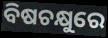
ବିଷଚକ୍ଷୁରେ